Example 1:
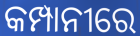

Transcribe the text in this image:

କମ୍ପାନୀରେ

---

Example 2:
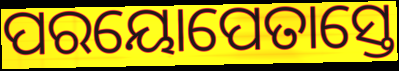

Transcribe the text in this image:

ପରୟୋପେତାସ୍ତେ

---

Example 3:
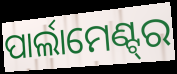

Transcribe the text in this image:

ପାର୍ଲାମେଣ୍ଟ୍‌ର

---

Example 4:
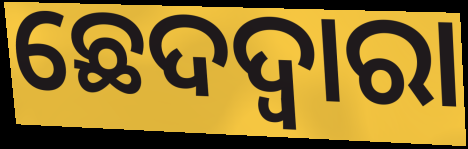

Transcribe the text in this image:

ଛେଦଦ୍ୱାରା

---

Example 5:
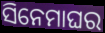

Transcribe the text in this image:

ସିନେମାଘର